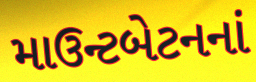
માઉન્ટબેટનનાં